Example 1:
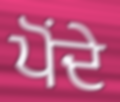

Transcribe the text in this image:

ਪੋਂਦੇ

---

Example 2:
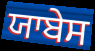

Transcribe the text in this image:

ਯਾਬੇਸ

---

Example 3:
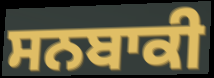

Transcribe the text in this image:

ਸਨਬਾਕੀ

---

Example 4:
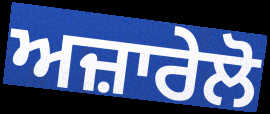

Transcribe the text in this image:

ਅਜ਼ਾਰੇਲੋ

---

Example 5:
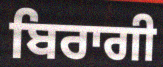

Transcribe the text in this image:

ਬਿਰਾਗੀ